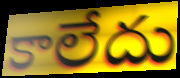
కాలేదు